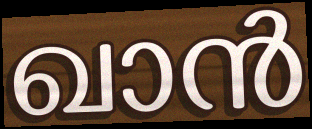
ഖാൻ